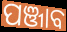
ପଞ୍ଜାବ